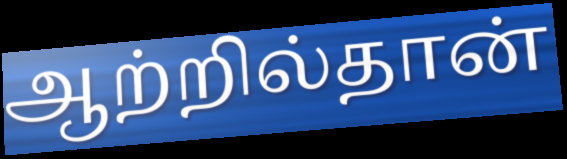
ஆற்றில்தான்